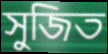
সুজিত